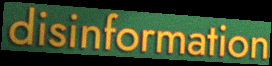
disinformation